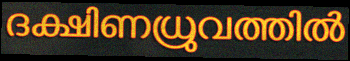
ദക്ഷിണധ്രുവത്തിൽ